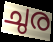
ചുര